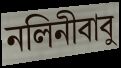
নলিনীবাবু